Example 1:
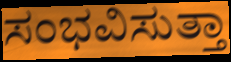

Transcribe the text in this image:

ಸಂಭವಿಸುತ್ತಾ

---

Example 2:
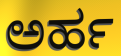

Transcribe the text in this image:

ಅರ್ಹ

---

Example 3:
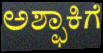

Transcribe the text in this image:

ಅಶ್ಫಾಕಿಗೆ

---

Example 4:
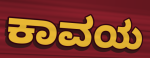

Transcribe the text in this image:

ಕಾವಯ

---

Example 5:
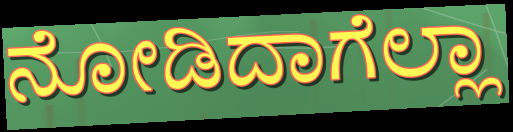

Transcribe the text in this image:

ನೋಡಿದಾಗೆಲ್ಲಾ